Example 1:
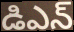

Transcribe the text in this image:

డిఎన్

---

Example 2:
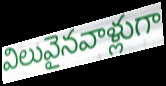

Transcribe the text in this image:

విలువైనవాళ్లుగా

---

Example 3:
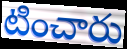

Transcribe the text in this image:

టించారు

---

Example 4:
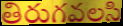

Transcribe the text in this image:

తిరుగవలసి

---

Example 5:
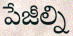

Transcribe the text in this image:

పేజీల్ని